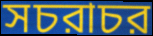
সচরাচর